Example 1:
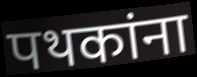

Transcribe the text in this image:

पथकांना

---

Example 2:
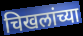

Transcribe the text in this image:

चिखलांच्या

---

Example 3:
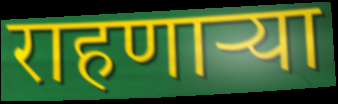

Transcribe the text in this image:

राहणाऱ्या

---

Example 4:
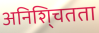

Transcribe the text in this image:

अनिश्‍चितता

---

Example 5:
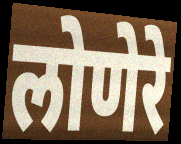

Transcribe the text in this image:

लोणेरे